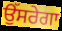
ਉੱਸਰੇਗਾ